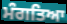
ਮੰਗਤਿਆ